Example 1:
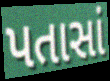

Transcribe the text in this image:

પતાસાં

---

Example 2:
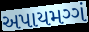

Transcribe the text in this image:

અપાયમગ્ગં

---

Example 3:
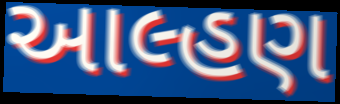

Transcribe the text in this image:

આલ્હણ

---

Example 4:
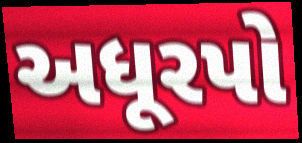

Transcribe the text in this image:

અધૂરપો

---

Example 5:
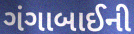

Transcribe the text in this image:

ગંગાબાઈની